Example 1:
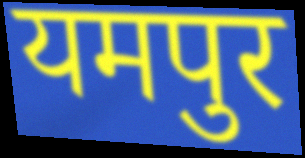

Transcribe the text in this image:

यमपुर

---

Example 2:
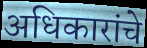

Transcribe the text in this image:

अधिकारांचे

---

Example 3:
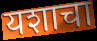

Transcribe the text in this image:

यशाचा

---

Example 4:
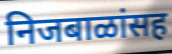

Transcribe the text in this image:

निजबाळांसह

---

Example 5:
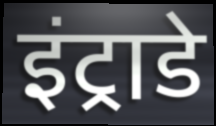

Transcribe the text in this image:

इंट्राडे